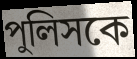
পুলিসকে